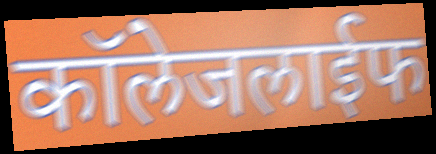
कॉलेजलाईफ